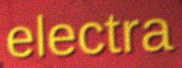
electra